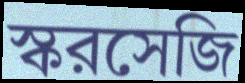
স্করসেজি